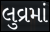
લુવ્રમાં